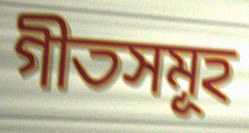
গীতসমূহ